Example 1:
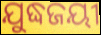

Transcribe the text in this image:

ଯୁଦ୍ଧଜୟୀ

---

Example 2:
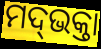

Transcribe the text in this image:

ମଦ୍‌ଭକ୍ତା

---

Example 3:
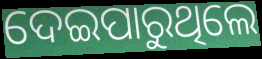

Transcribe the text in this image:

ଦେଇପାରୁଥିଲେ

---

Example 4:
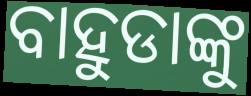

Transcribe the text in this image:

ବାହୁଡାଙ୍କୁ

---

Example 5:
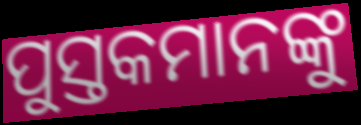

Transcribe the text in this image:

ପୁସ୍ତକମାନଙ୍କୁ